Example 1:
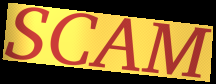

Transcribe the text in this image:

SCAM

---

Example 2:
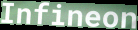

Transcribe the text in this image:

Infineon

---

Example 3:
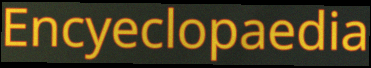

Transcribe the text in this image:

Encyeclopaedia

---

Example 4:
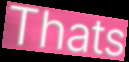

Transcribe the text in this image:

Thats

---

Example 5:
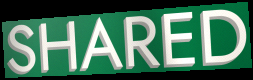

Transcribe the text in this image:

SHARED